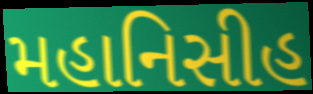
મહાનિસીહ